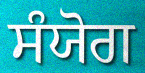
ਸੰਯੋਗ